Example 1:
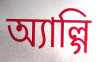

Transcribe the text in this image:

অ্যাল্গি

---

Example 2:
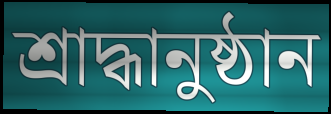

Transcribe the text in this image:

শ্রাদ্ধানুষ্ঠান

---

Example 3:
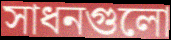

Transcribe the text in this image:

সাধনগুলো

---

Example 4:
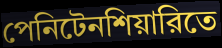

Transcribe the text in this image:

পেনিটেনশিয়ারিতে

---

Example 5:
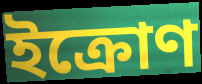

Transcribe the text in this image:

ইক্রোণ